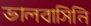
ভালবাসিনি